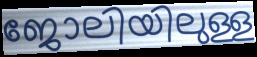
ജോലിയിലുള്ള